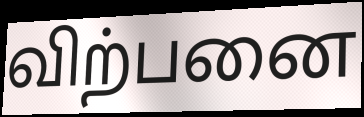
விற்பனை